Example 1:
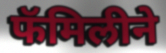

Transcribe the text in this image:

फॅमिलीने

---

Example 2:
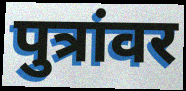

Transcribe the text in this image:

पुत्रांवर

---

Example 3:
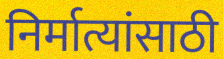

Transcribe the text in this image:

निर्मात्यांसाठी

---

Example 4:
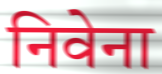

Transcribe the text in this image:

निवेना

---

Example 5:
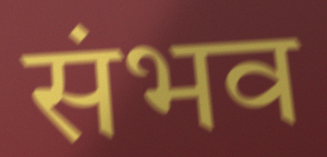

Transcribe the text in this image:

संभव